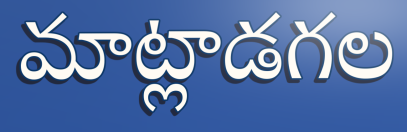
మాట్లాడగల